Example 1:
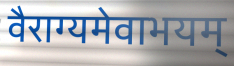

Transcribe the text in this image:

वैराग्यमेवाभयम्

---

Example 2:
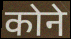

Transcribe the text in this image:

कोने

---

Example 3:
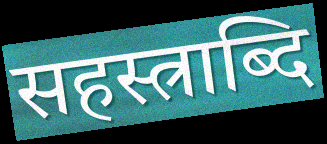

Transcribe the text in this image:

सहस्त्राब्दि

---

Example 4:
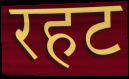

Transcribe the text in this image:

रहट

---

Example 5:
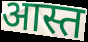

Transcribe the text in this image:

आस्त